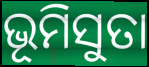
ଭୂମିସୁତା